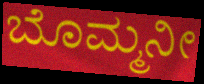
ಬೊಮ್ಮನೀ